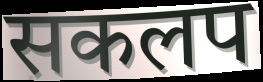
सकलप